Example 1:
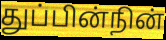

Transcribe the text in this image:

துப்பின்நின்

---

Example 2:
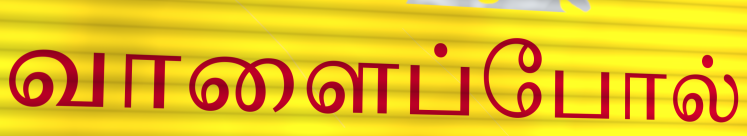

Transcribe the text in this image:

வாளைப்போல்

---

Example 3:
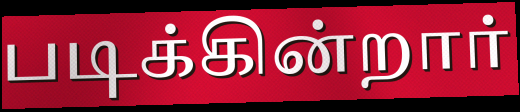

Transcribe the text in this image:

படிக்கின்றார்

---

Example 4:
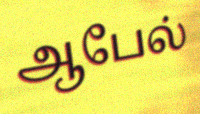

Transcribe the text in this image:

ஆபேல்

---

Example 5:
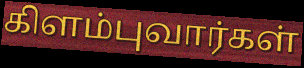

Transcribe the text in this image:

கிளம்புவார்கள்